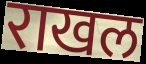
राखल